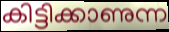
കിട്ടിക്കാണുന്ന